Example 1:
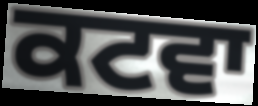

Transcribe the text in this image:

ਕਟਵਾ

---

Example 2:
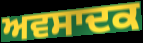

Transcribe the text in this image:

ਅਵਸਾਦਕ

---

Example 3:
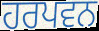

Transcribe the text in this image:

ਹਰਪਵਨ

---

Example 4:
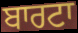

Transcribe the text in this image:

ਬਾਰਟਾ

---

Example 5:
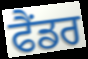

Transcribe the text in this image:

ਫੈਂਡਰ